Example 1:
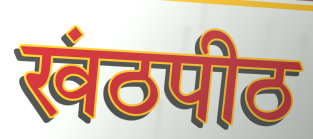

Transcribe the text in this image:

खंठपीठ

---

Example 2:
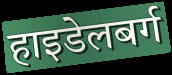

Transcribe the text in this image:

हाइडेलबर्ग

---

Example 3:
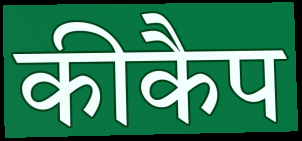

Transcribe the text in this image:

कीकैप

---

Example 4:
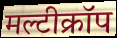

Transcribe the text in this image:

मल्टीक्रॉप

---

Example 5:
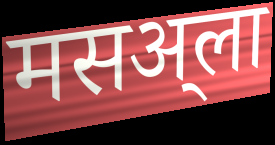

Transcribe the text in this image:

मसअ्ला